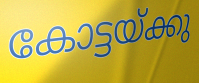
കോട്ടയ്ക്കു